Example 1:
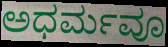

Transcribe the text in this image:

ಅಧರ್ಮವೂ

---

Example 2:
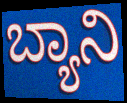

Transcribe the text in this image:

ಬ್ಯಾನಿ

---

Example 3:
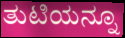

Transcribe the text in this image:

ತುಟಿಯನ್ನೂ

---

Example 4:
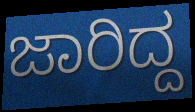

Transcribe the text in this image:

ಜಾರಿದ್ದ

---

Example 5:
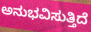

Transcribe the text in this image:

ಅನುಭವಿಸುತ್ತಿದೆ